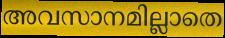
അവസാനമില്ലാതെ